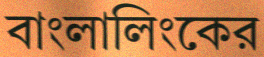
বাংলালিংকের